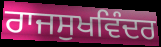
ਰਾਜਸੁਖਵਿੰਦਰ